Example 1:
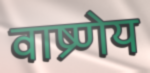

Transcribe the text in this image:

वाष्र्णेय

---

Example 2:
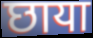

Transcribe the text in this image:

छाया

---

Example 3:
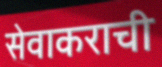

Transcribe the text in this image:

सेवाकराची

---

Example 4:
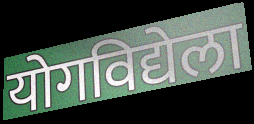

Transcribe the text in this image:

योगविद्येला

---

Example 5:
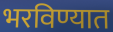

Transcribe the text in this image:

भरविण्यात